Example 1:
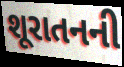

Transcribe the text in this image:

શૂરાતનની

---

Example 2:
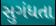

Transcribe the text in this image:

સુગંધતા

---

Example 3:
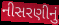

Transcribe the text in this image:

નીસરણીનું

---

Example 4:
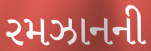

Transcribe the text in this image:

રમઝાનની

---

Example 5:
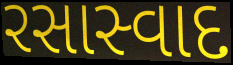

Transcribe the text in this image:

રસાસ્વાદ